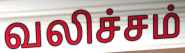
வலிச்சம்